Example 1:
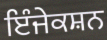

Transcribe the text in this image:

ਇੰਜੇਕਸ਼ਨ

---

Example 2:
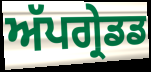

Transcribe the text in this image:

ਅੱਪਗ੍ਰੇਡਡ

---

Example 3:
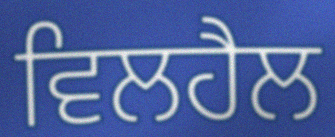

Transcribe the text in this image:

ਵਿਲਹੈਲ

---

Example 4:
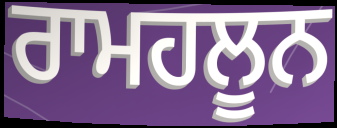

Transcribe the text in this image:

ਰਾਮਹਲੂਨ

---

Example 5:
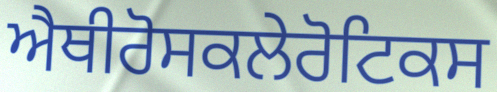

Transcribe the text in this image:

ਐਥੀਰੋਸਕਲੇਰੋਟਿਕਸ